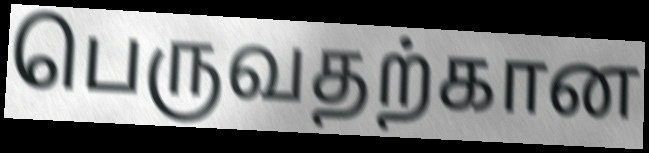
பெருவதற்கான